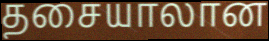
தசையாலான